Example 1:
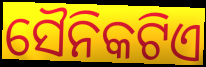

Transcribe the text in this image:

ସୈନିକଟିଏ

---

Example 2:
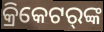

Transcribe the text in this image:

କ୍ରିକେଟର୍‌ଙ୍କ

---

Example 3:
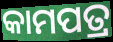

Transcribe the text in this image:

କାମପତ୍ର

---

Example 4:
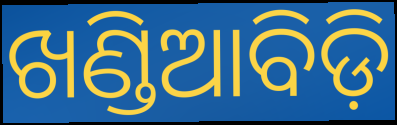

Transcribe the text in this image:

ଖଣ୍ଡିଆବିଡ଼ି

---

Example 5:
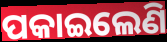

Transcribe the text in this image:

ପକାଇଲେଣି